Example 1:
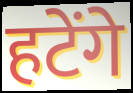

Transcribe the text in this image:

हटेंगे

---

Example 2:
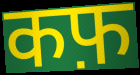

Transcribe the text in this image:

कफ़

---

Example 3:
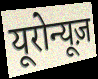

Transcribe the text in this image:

यूरोन्यूज़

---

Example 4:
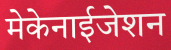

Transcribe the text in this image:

मेकेनाईजेशन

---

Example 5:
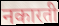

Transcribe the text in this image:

नकारती